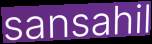
sansahil